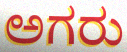
ಅಗರು